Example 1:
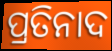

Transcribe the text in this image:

ପ୍ରତିନାଦ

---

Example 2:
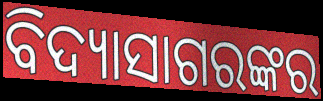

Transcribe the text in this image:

ବିଦ୍ୟାସାଗରଙ୍କର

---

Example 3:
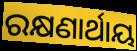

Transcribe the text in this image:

ରକ୍ଷଣାର୍ଥାୟ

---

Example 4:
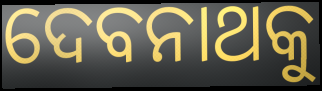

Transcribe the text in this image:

ଦେବନାଥକୁ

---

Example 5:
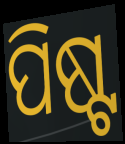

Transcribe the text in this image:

ପିଷ୍ଟ